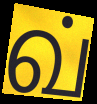
வ்